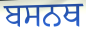
ਬਸਨਥ